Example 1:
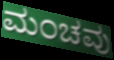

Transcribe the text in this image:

ಮಂಚವು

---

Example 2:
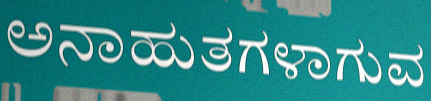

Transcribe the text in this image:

ಅನಾಹುತಗಳಾಗುವ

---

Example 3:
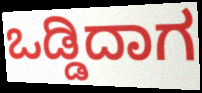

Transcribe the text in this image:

ಒಡ್ಡಿದಾಗ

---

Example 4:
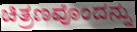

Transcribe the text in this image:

ಚಿತ್ರಣವೊಂದನ್ನು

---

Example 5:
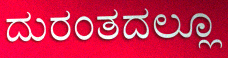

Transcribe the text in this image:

ದುರಂತದಲ್ಲೂ